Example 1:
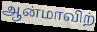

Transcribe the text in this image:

ஆன்மாவிற்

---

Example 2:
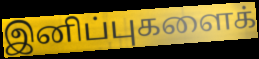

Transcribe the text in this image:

இனிப்புகளைக்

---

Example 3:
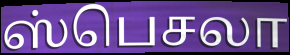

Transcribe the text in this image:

ஸ்பெசலா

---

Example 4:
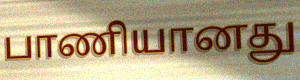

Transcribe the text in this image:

பாணியானது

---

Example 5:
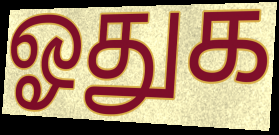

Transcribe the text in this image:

ஓதுக